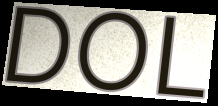
DOL